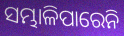
ସମ୍ଭାଳିପାରେନି